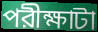
পরীক্ষাটা